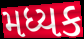
મધ્યક